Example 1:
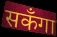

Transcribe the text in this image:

सकँगा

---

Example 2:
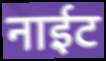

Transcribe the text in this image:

नाईट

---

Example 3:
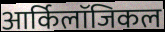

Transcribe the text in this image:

आर्किलॉजिकल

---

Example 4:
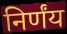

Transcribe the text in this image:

निर्णंय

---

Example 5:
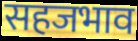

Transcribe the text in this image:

सहजभाव